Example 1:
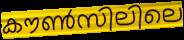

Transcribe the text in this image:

കൗൺസിലിലെ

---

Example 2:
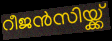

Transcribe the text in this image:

റീജൻസിയ്ക്ക്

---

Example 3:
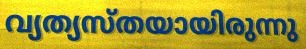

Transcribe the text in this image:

വ്യത്യസ്തയായിരുന്നു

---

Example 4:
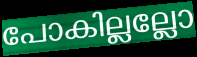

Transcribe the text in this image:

പോകില്ലല്ലോ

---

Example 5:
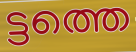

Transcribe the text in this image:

ട്ടത്തെ